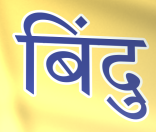
बिंदु